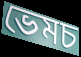
ভেমচ